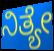
ನಿತ್ಯೇ